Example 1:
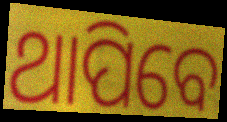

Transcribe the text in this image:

ଥାପିବେ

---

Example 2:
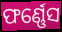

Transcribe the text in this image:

ଫର୍ଣ୍ଣେସ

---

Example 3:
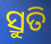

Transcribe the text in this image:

ସ୍ରୁତି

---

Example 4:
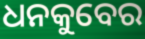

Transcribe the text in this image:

ଧନକୁବେର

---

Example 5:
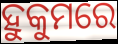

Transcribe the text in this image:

ହୁକୁମରେ